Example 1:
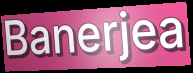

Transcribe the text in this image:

Banerjea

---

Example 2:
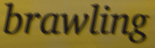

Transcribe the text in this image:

brawling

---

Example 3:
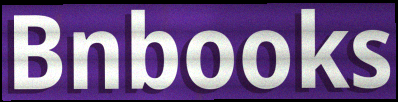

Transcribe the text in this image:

Bnbooks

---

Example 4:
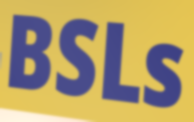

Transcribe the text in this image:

BSLs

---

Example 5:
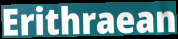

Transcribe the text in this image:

Erithraean